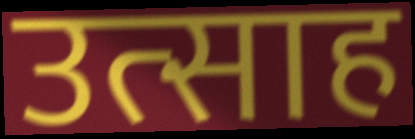
उत्‍साह